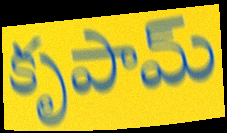
కృపామ్